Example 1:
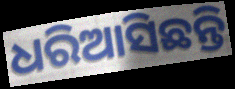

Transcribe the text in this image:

ଧରିଆସିଛନ୍ତି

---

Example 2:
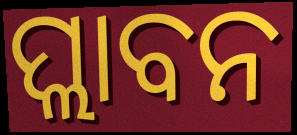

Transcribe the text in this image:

ପ୍ଲାବନ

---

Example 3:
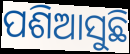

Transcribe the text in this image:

ପଶିଆସୁଛି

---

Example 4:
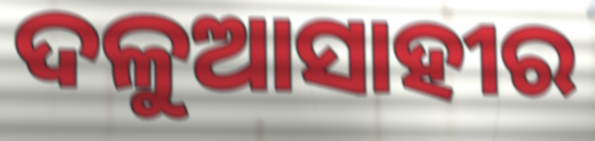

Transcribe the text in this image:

ଦଳୁଆସାହୀର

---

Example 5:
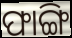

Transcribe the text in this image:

ଫାଙ୍ଗି